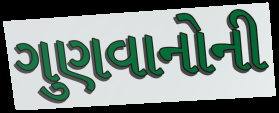
ગુણવાનોની